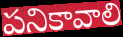
పనికావాలి